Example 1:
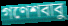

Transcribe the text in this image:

গণেশবাবু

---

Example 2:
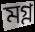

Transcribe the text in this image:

মগ্ন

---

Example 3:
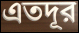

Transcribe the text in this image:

এতদূর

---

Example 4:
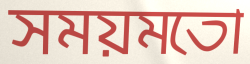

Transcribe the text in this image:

সময়মতো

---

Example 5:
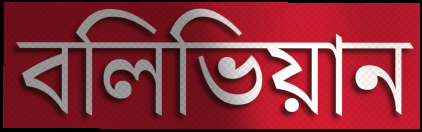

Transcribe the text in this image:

বলিভিয়ান